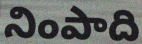
నింపాది